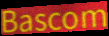
Bascom